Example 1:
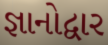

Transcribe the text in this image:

જ્ઞાનોદ્વાર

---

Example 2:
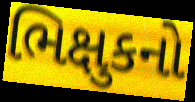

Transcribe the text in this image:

ભિક્ષુકનો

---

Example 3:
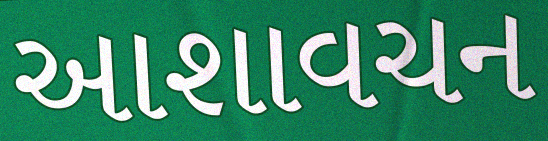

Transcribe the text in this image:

આશાવચન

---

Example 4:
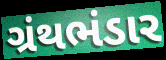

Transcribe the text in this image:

ગ્રંથભંડાર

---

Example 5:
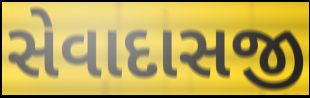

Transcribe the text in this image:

સેવાદાસજી